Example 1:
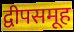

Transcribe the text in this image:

द्वीपसमूह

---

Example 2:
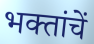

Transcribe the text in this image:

भक्तांचें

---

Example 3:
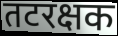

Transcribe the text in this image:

तटरक्षक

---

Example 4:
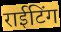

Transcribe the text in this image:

राईटिंग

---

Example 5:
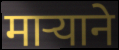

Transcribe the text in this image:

मार्‍याने